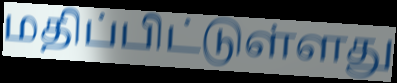
மதிப்பிட்டுள்ளது